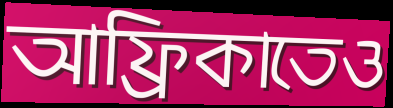
আফ্রিকাতেও